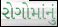
રોગોમાંનું